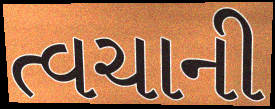
ત્વચાની